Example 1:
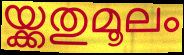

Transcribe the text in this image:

യ്ക്കതുമൂലം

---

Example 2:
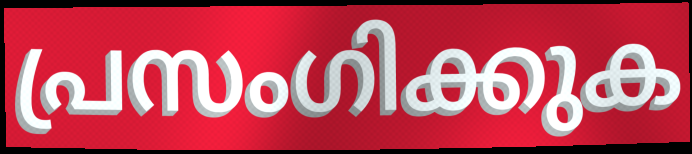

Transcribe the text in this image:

പ്രസംഗിക്കുക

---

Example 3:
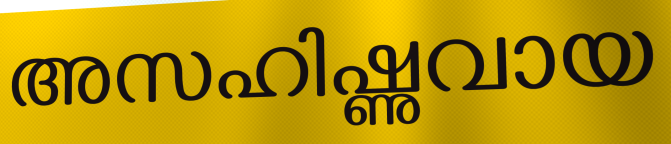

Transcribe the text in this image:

അസഹിഷ്ണുവായ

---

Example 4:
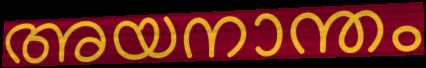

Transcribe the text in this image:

അയനാന്തം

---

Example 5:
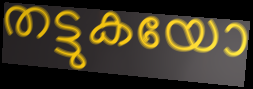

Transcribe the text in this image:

തട്ടുകയോ